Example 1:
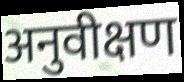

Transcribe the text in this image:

अनुवीक्षण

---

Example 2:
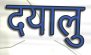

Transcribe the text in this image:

दयालु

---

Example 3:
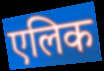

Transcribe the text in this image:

एलिक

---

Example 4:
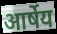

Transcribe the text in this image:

आर्षेय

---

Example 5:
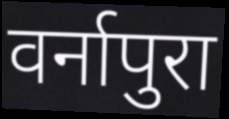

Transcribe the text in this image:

वर्नापुरा